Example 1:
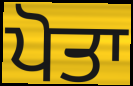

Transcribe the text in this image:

ਪੋਤਾ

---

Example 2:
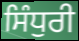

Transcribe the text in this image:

ਸਿੰਧੁਰੀ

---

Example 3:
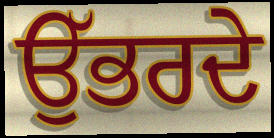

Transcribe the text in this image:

ਉੱਭਰਦੇ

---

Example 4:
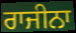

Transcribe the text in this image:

ਰਾਜੀਨਾ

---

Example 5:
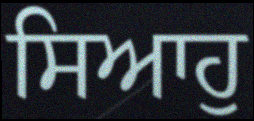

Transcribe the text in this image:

ਸਿਆਹੁ